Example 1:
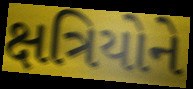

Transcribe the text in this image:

ક્ષત્રિયોને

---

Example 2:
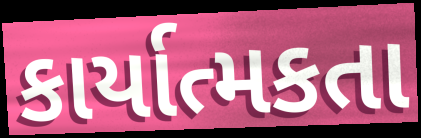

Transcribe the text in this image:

કાર્યાત્મકતા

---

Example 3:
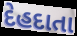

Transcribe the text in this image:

દેહદાતા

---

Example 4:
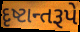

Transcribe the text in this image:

દૃષ્ટાન્તરૂપે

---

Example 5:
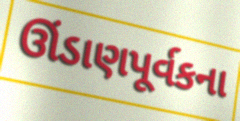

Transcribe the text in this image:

ઊંડાણપૂર્વકના